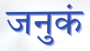
जनुकं